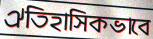
ঐতিহাসিকভাবে